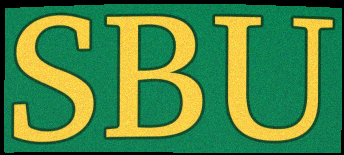
SBU